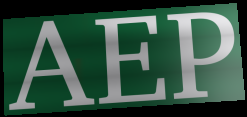
AEP